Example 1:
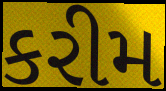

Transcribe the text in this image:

કરીમ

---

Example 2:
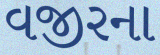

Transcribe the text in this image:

વજીરના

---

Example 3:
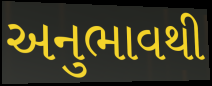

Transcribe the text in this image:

અનુભાવથી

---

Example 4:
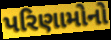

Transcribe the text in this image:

પરિણામોનો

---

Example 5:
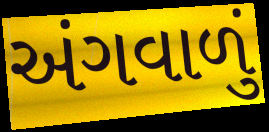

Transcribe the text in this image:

અંગવાળું